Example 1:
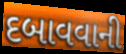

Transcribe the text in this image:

દબાવવાની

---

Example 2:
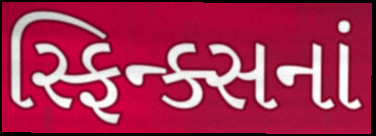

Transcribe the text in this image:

સ્ફિન્ક્સનાં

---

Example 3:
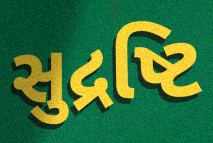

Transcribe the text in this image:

સુદ્રષ્ટિ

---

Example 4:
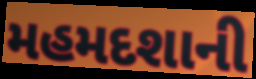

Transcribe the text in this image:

મહમદશાની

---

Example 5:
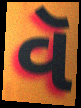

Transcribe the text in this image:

વૅ